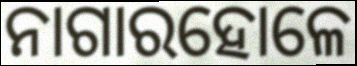
ନାଗାରହୋଳେ